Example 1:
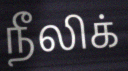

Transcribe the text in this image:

நீலிக்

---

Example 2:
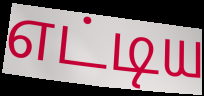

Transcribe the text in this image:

எட்டிய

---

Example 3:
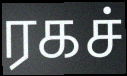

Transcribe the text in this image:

ரகச்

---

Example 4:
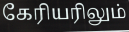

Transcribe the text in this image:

கேரியரிலும்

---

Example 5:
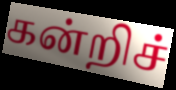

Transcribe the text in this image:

கன்றிச்